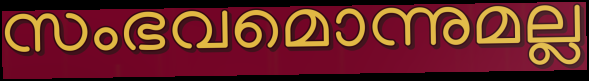
സംഭവമൊന്നുമല്ല